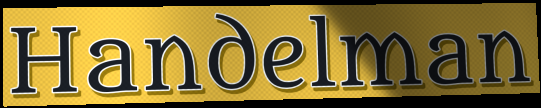
Handelman